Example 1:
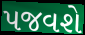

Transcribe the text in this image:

પજવશે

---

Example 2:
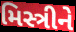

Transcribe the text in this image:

મિસ્ત્રીને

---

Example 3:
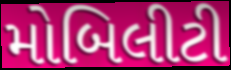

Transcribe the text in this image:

મોબિલીટી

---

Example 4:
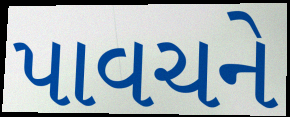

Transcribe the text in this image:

પાવચને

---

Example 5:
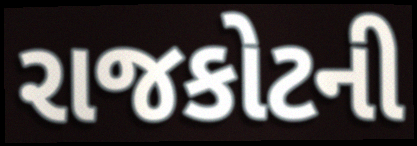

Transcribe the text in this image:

રાજકોટની